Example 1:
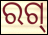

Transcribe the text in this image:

ରଗ୍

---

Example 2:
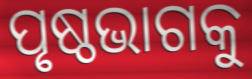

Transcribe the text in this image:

ପୃଷ୍ଠଭାଗକୁ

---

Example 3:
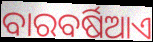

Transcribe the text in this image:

ବାରବର୍ଷିଆଏ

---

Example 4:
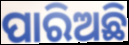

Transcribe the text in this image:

ପାରିଅଛି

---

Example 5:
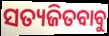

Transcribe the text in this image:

ସତ୍ୟଜିତବାବୁ